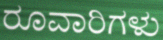
ರೂವಾರಿಗಳು